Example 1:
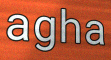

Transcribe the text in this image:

agha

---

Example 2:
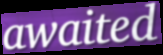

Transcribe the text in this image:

awaited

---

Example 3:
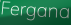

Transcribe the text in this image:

Fergana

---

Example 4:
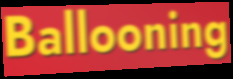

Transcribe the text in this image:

Ballooning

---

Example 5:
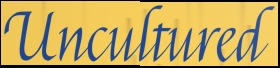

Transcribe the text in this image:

Uncultured